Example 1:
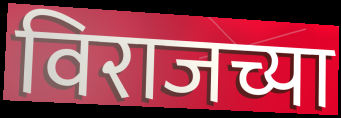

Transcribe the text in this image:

विराजच्या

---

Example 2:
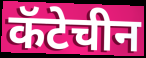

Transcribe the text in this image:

कॅटेचीन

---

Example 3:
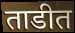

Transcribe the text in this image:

ताडीत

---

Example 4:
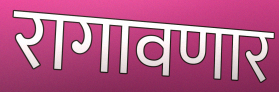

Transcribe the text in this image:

रागावणार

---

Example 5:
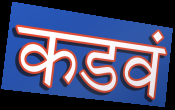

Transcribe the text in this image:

कडवं